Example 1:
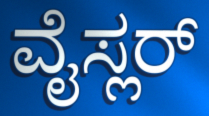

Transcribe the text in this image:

ವೈಸ್ಲರ್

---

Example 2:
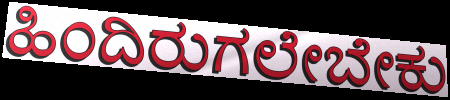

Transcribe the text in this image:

ಹಿಂದಿರುಗಲೇಬೇಕು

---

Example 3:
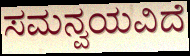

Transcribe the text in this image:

ಸಮನ್ವಯವಿದೆ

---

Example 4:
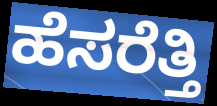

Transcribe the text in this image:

ಹೆಸರೆತ್ತಿ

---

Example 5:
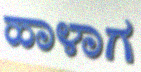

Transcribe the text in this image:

ಹಾಳಾಗ